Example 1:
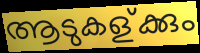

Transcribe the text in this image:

ആടുകള്ക്കും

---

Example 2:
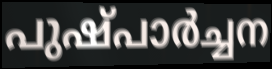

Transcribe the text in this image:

പുഷ്പാർച്ചന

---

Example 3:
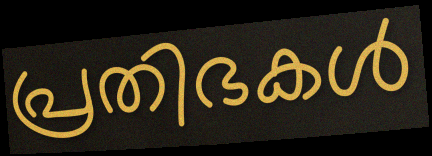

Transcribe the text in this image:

പ്രതിഭകൾ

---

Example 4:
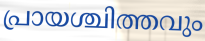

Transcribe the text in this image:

പ്രായശ്ചിത്തവും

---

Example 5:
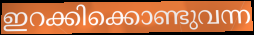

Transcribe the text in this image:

ഇറക്കിക്കൊണ്ടുവന്ന